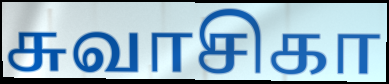
சுவாசிகா